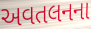
અવતલનના